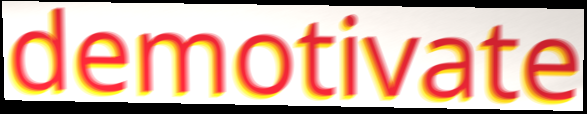
demotivate